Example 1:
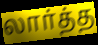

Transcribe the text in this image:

லார்த்த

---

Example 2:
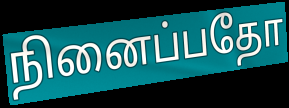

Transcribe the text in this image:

நினைப்பதோ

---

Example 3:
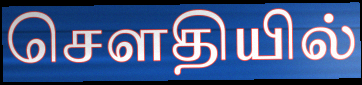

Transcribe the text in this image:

செளதியில்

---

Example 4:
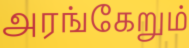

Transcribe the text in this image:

அரங்கேறும்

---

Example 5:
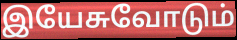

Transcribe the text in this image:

இயேசுவோடும்